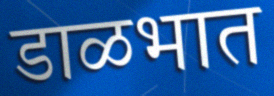
डाळभात